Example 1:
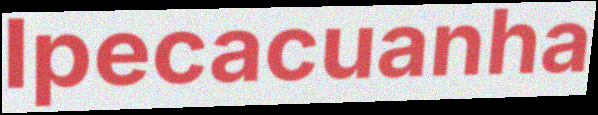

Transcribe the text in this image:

Ipecacuanha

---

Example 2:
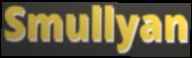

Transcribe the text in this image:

Smullyan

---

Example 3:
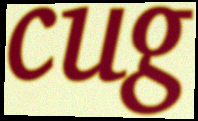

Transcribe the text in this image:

cug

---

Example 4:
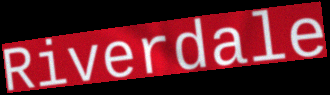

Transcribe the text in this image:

Riverdale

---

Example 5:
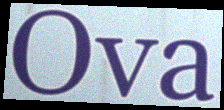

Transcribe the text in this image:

Ova